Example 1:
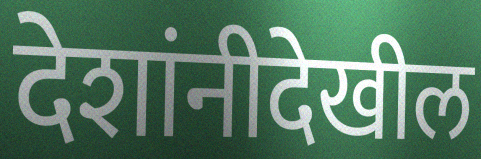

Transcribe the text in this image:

देशांनीदेखील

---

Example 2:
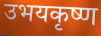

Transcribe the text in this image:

उभयकृष्ण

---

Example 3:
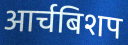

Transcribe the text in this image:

आर्चबिशप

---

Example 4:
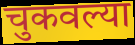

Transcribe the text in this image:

चुकवल्या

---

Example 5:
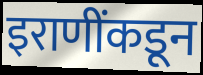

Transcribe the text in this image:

इराणींकडून